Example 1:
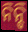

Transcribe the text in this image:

ନିନ୍ଦି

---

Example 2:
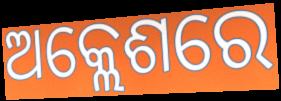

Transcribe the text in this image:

ଅକ୍ଲେଶରେ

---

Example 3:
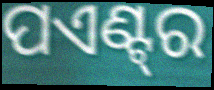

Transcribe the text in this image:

ପଏଣ୍ଟ୍‌ର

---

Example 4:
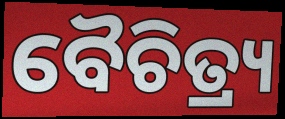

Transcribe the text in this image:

ବୈଚିତ୍ର୍ୟ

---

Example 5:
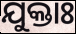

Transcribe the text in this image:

ଯୁକ୍ତାଃ